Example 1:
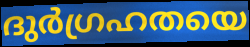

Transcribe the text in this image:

ദുർഗ്രഹതയെ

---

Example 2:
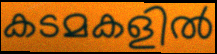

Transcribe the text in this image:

കടമകളിൽ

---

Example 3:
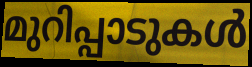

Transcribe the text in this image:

മുറിപ്പാടുകൾ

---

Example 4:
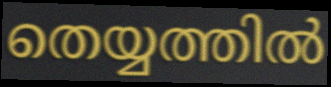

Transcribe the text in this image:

തെയ്യത്തിൽ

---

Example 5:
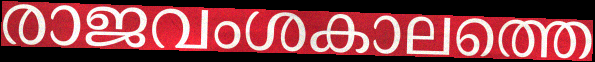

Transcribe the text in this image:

രാജവംശകാലത്തെ